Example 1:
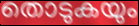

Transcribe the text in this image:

തൊടുകയും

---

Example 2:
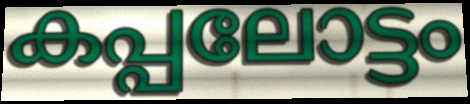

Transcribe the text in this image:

കപ്പലോട്ടം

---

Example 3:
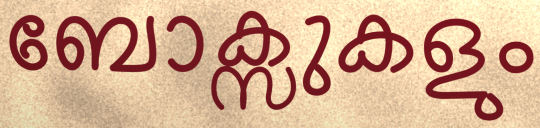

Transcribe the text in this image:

ബോക്സുകളും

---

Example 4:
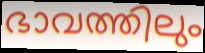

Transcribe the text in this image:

ഭാവത്തിലും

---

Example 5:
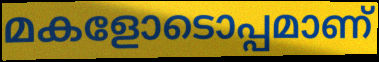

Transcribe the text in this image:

മകളോടൊപ്പമാണ്